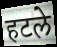
हटले